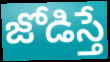
జోడిస్తే